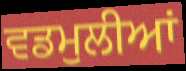
ਵਡਮੁਲੀਆਂ